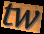
tw